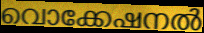
വൊക്കേഷനൽ